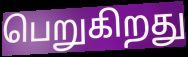
பெறுகிறது